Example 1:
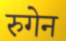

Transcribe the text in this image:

रुगेन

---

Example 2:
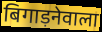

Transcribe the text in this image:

बिगाड़नेवाला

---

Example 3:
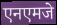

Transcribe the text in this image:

एनएमजे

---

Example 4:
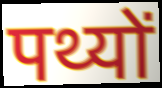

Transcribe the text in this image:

पथ्यों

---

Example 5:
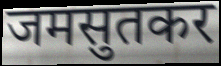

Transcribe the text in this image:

जमसुतकर